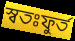
স্বতঃফুর্ত